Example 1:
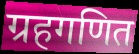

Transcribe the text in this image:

ग्रहगणित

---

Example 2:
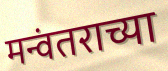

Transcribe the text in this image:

मन्वंतराच्या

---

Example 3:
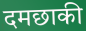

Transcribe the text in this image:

दमछाकी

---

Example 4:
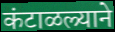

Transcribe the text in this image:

कंटाळल्याने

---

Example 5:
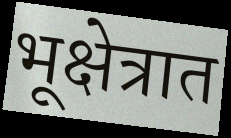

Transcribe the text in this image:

भूक्षेत्रात